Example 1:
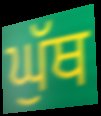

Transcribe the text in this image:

ਘੁੱਥ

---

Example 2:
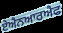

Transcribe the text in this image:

ਏਐਨਆਰਐਫ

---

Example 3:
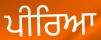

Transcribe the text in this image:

ਪੀਰਿਆ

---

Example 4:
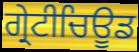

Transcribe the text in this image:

ਗ੍ਰੇਟੀਚਿਊਡ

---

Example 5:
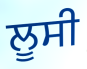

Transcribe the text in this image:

ਲੂਸੀ